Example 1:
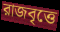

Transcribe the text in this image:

রাজবৃত্তে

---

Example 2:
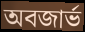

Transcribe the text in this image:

অবজার্ভ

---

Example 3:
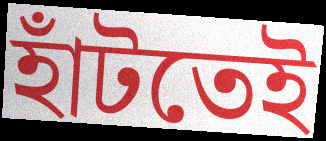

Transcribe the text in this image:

হাঁটতেই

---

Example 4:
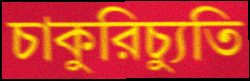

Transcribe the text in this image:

চাকুরিচ্যুতি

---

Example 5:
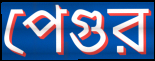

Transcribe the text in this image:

পেগুর